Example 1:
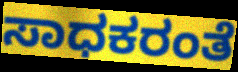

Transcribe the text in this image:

ಸಾಧಕರಂತೆ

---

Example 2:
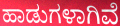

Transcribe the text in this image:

ಹಾಡುಗಳಾಗಿವೆ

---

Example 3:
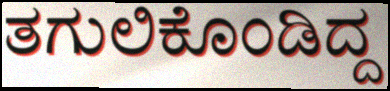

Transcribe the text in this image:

ತಗುಲಿಕೊಂಡಿದ್ದ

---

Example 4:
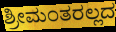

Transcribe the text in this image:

ಶ್ರೀಮಂತರಲ್ಲದ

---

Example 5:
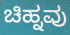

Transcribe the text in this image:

ಚಿಹ್ನವು